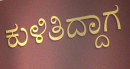
ಕುಳಿತಿದ್ದಾಗ